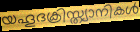
യഹൂദക്രിസ്ത്യാനികൾ